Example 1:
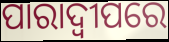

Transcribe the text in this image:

ପାରାଦ୍ବୀପରେ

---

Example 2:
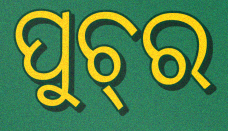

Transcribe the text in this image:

ପୁଚ୍‍ର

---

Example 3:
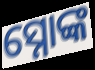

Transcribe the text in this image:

ସ୍ନୋଙ୍କ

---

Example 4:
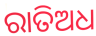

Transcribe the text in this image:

ରାତିଅଧ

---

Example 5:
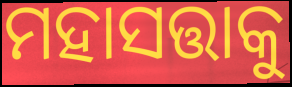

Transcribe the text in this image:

ମହାସତ୍ତାକୁ